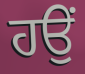
ਹਉਂ